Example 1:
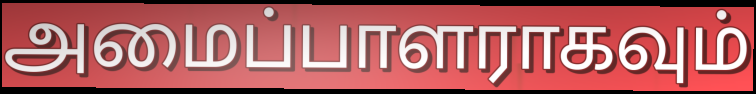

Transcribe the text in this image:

அமைப்பாளராகவும்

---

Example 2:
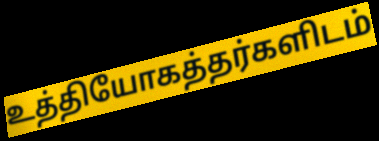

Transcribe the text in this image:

உத்தியோகத்தர்களிடம்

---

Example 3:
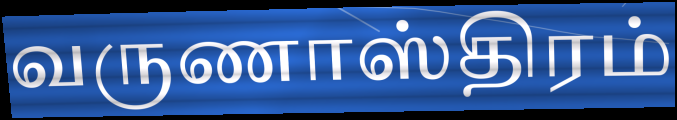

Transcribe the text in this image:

வருணாஸ்திரம்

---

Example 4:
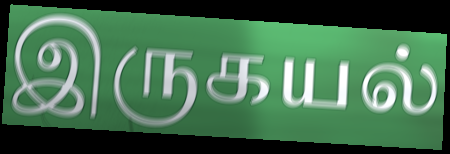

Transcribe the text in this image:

இருகயல்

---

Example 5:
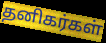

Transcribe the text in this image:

தனிகர்கள்